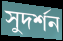
সুদর্শন